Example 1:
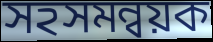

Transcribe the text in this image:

সহসমন্বয়ক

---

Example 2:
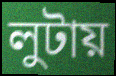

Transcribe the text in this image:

লুটায়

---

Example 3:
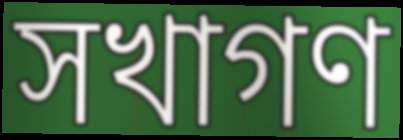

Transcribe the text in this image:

সখাগণ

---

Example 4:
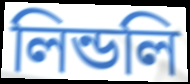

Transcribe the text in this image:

লিন্ডলি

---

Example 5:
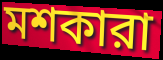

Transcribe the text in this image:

মশকারা